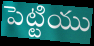
పెట్టియు